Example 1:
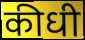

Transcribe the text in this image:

कीधी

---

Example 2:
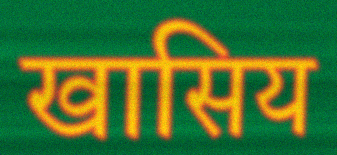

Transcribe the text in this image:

खासिय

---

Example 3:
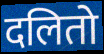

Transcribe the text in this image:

दलितो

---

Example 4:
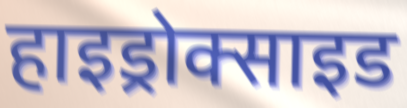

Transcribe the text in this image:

हाइड्रोक्साइड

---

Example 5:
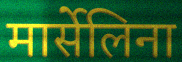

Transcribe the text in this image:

मार्सेलिना